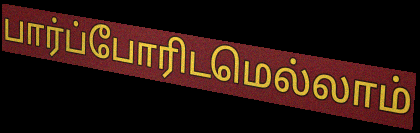
பார்ப்போரிடமெல்லாம்